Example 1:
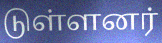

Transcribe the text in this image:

டுள்ளனர்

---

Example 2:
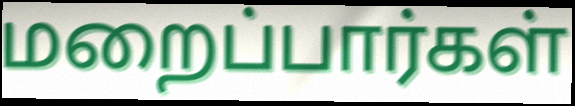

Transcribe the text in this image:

மறைப்பார்கள்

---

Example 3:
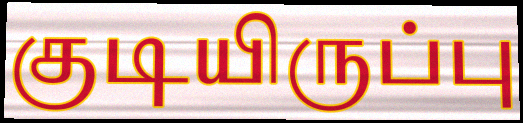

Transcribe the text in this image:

குடியிருப்பு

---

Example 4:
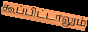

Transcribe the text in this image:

கூப்பிட்டாலும்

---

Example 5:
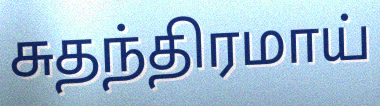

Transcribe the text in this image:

சுதந்திரமாய்